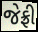
જેફ્રી